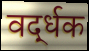
वर्द्धक